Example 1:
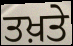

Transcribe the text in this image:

ਤਖ਼ਤੇ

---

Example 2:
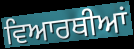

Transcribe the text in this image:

ਵਿਆਰਥੀਆਂ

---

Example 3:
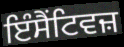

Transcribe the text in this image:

ਇੰਸੈਂਟਿਵਜ਼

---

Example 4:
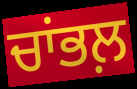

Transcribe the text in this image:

ਚਾਂਭਲ਼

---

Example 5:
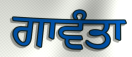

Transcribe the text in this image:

ਗਾਵੰਤਾ